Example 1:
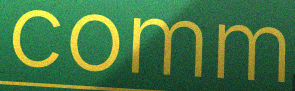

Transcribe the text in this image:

comm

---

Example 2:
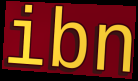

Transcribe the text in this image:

ibn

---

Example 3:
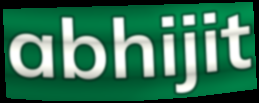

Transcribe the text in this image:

abhijit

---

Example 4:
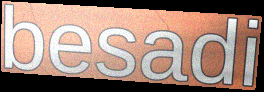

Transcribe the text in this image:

besadi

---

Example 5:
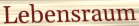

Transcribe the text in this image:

Lebensraum